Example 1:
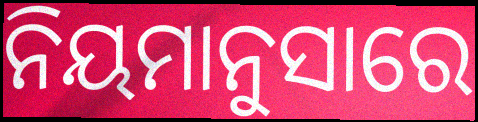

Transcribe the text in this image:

ନିୟମାନୁସାରେ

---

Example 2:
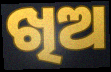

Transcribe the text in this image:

ଖିଅ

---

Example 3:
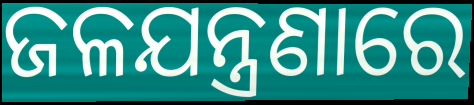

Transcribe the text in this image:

ଜଳଯନ୍ତ୍ରଣାରେ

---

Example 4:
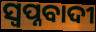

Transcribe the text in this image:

ସ୍ୱପ୍ନବାଦୀ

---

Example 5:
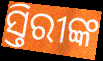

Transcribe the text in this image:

ସ୍ତିରୀଙ୍କ